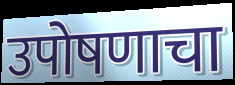
उपोषणाचा